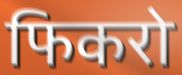
फिकरो